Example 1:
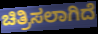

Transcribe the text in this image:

ಚಿತ್ರಿಸಲಾಗಿದೆ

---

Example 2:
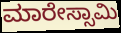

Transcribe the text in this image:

ಮಾರೇಸ್ಸಾಮಿ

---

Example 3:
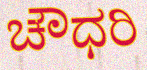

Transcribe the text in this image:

ಚೌಧರಿ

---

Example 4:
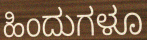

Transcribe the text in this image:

ಹಿಂದುಗಳೂ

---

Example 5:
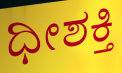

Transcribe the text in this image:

ಧೀಶಕ್ತಿ